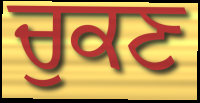
ਚੁਕਣ